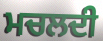
ਮਚਲਦੀ